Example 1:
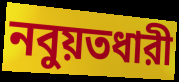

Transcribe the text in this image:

নবুয়তধারী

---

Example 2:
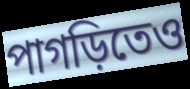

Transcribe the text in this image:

পাগড়িতেও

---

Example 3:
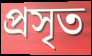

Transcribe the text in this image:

প্রসৃত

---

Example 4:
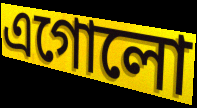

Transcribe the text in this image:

এগোলো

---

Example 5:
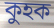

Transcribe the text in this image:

কুহক